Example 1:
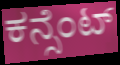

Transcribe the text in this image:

ಕನ್ಸೆಂಟ್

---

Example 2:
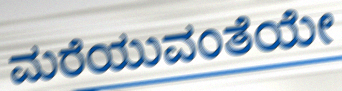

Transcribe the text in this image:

ಮರೆಯುವಂತೆಯೇ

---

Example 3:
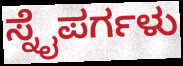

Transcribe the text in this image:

ಸ್ನೈಪರ್ಗಳು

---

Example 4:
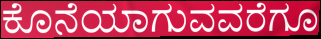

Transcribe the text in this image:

ಕೊನೆಯಾಗುವವರೆಗೂ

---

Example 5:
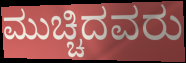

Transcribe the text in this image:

ಮುಚ್ಚಿದವರು